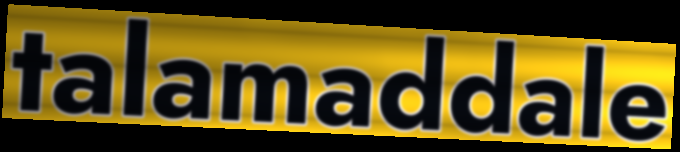
talamaddale